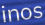
inos